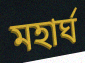
মহার্ঘ